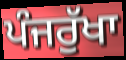
ਪੰਜਰੁੱਖਾ